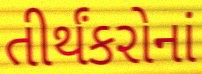
તીર્થંકરોનાં